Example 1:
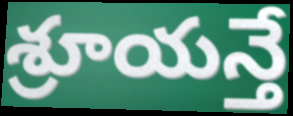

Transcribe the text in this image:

శ్రూయన్తే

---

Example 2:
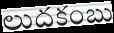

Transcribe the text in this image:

లుదకంబు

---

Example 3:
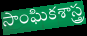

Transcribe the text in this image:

సాంఘికశాస్త్ర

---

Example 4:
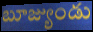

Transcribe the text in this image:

బూజ్యుండు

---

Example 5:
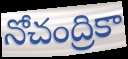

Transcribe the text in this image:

నోచంద్రికా